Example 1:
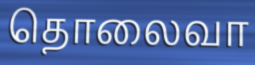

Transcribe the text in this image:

தொலைவா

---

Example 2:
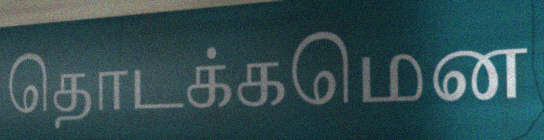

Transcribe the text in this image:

தொடக்கமென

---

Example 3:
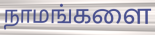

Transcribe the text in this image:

நாமங்களை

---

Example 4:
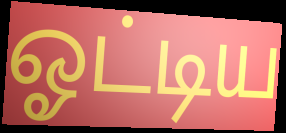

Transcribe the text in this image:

ஓட்டிய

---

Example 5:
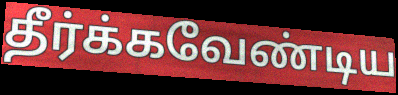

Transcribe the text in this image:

தீர்க்கவேண்டிய